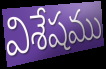
విశేషము